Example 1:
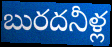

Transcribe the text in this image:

బురదనీళ్ల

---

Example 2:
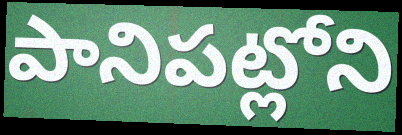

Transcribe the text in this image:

పానిపట్లోని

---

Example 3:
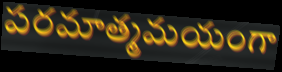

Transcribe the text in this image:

పరమాత్మమయంగా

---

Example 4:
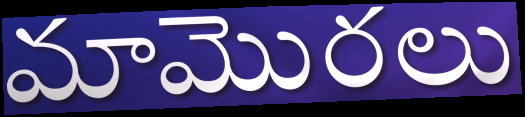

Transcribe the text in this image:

మామొరలు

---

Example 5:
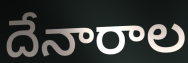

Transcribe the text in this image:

దేనారాల